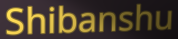
Shibanshu